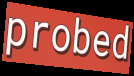
probed